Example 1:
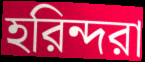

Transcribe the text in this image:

হরিন্দরা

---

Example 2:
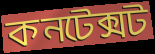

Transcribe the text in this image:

কনটেক্সট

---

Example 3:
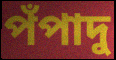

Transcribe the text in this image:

পঁপাদু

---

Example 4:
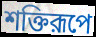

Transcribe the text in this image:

শক্তিরূপে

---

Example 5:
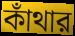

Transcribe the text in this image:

কাঁথার